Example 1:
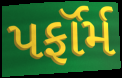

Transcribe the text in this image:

પર્ફૉર્મ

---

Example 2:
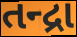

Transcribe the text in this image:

તન્દ્રા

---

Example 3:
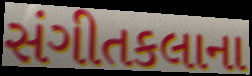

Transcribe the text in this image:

સંગીતકલાના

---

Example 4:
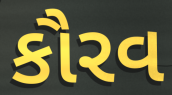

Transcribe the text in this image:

કૌરવ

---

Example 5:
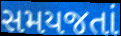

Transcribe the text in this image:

સમયજતાં